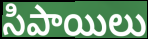
సిపాయిలు